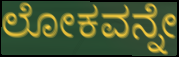
ಲೋಕವನ್ನೇ